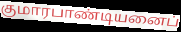
குமாரபாண்டியனைப்